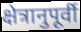
क्षेत्रानुपूर्वी